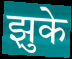
झुके